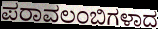
ಪರಾವಲಂಬಿಗಳಾದ